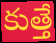
కుత్తే